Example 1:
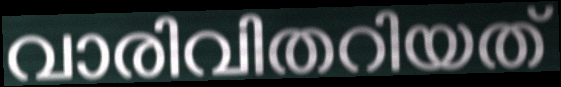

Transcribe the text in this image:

വാരിവിതറിയത്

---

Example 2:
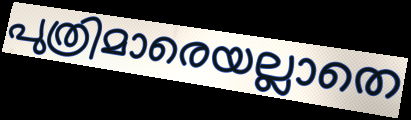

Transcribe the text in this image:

പുത്രിമാരെയല്ലാതെ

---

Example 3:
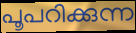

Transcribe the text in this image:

പൂപറിക്കുന്ന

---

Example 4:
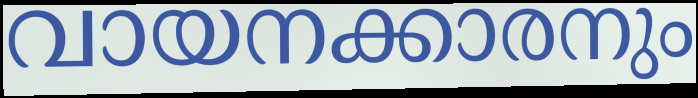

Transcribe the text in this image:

വായനക്കാരനും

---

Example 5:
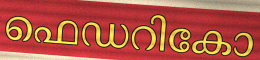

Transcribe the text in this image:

ഫെഡറികോ